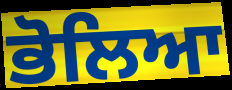
ਭੋਲਿਆ